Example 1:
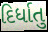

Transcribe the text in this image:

દિર્ધાતુ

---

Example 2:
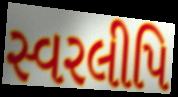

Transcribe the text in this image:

સ્વરલીપિ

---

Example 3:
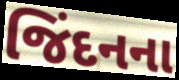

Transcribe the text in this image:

જિંદનના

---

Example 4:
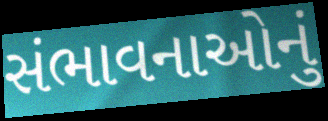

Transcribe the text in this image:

સંભાવનાઓનું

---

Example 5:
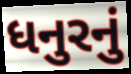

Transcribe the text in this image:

ધનુરનું